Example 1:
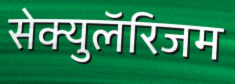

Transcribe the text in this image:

सेक्युलॅरिजम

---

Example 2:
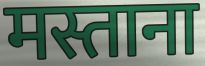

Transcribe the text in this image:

मस्ताना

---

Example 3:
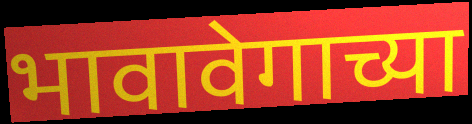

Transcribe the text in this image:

भावावेगाच्या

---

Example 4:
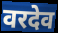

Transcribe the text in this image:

वरदेव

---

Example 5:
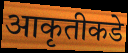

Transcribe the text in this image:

आकृतीकडे